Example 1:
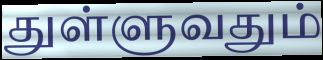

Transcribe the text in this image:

துள்ளுவதும்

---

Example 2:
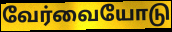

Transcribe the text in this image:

வேர்வையோடு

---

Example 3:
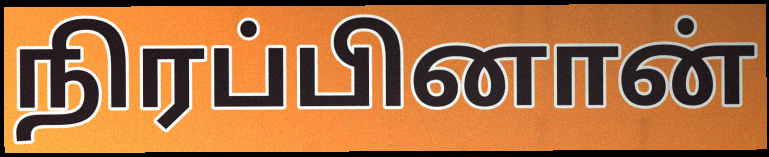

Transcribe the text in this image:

நிரப்பினான்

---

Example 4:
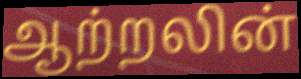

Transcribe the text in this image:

ஆற்றலின்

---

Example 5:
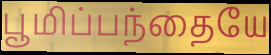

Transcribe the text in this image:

பூமிப்பந்தையே